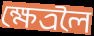
ক্ষেত্ৰলৈ